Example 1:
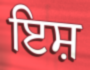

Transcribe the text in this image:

ਇਸ਼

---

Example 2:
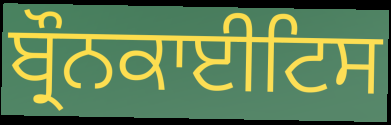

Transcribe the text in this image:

ਬ੍ਰੌਨਕਾਈਟਿਸ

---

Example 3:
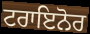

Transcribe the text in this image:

ਟਰਾਇਨੋਰ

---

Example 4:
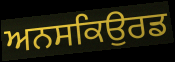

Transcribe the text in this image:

ਅਨਸਕਿਉਰਡ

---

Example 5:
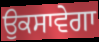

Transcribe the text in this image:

ਉਕਸਾਵੇਗਾ